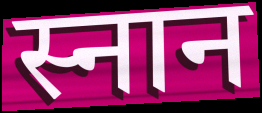
स्‍नान